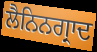
ਲੈਨਿਨਗ੍ਰਾਦ